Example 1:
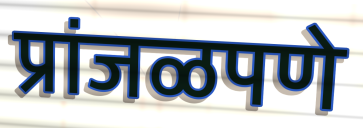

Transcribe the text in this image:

प्रांजळपणे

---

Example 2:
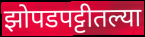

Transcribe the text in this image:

झोपडपट्टीतल्या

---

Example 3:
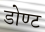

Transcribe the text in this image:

डोण्ट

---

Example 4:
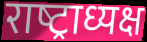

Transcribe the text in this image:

राष्ट्राध्यक्ष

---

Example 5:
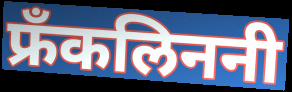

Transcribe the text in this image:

फ्रँकलिननी